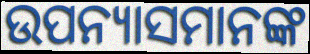
ଉପନ୍ୟାସମାନଙ୍କ